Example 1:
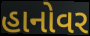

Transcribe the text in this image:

હાનોવર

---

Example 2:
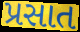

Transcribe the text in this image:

પ્રસાત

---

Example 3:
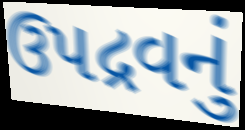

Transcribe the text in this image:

ઉપદ્રવનું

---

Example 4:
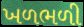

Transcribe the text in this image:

ખળભળી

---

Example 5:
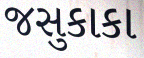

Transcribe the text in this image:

જસુકાકા